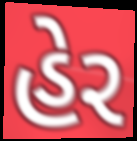
હેર